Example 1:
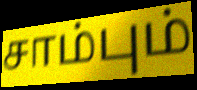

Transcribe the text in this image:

சாம்பும்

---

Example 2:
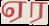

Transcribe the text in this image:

ஏர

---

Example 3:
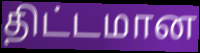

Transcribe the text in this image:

திட்டமான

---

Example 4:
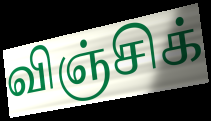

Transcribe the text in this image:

விஞ்சிக்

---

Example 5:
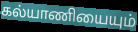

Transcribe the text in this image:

கல்யாணியையும்